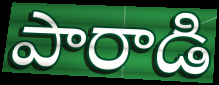
పారాడి